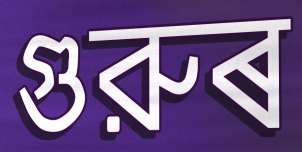
গুৰুৰ